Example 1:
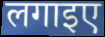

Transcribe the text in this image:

लगाइए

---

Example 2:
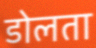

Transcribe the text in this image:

डोलता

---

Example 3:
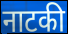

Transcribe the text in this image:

नाटकी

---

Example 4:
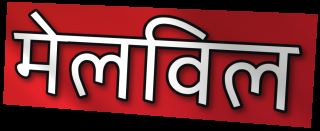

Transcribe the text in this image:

मेलविल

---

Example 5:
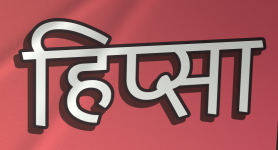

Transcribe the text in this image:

हिप्सा